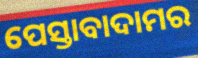
ପେସ୍ତାବାଦାମର